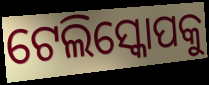
ଟେଲିସ୍କୋପକୁ